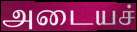
அடையச்